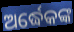
ଅର୍ଦ୍ଧେକଙ୍କ